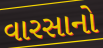
વારસાનો